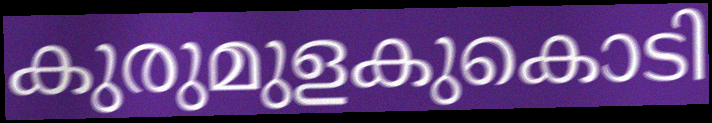
കുരുമുളകുകൊടി